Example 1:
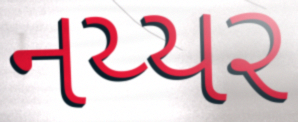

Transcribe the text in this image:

નય્યર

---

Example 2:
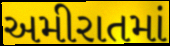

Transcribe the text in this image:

અમીરાતમાં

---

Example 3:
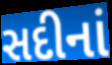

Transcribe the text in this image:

સદીનાં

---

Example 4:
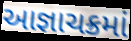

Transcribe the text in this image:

આજ્ઞાચક્રમાં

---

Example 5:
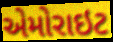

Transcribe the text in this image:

એમોરાઇટ